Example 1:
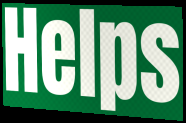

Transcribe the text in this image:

Helps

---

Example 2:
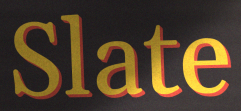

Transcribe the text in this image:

Slate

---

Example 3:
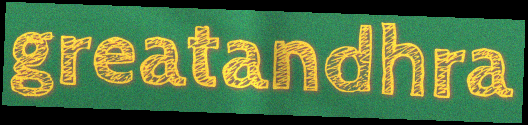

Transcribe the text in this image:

greatandhra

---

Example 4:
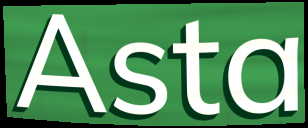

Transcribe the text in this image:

Asta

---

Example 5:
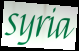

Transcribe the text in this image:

syria